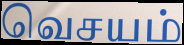
வெசயம்